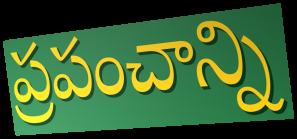
ప్రపంచాన్ని